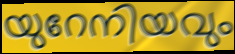
യുറേനിയവും